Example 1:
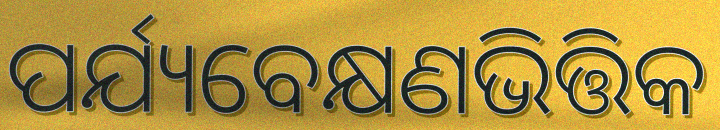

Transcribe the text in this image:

ପର୍ଯ୍ୟବେକ୍ଷଣଭିତ୍ତିକ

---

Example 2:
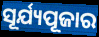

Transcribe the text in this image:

ସୂର୍ଯ୍ୟପୂଜାର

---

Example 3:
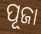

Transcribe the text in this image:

ପୂଜା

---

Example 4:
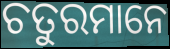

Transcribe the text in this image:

ଚତୁରମାନେ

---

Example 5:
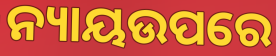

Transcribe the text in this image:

ନ୍ୟାୟଉପରେ